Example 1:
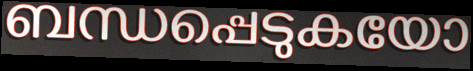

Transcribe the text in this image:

ബന്ധപ്പെടുകയോ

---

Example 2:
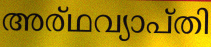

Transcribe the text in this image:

അര്ഥവ്യാപ്തി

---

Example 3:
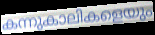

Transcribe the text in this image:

കന്നുകാലികളെയും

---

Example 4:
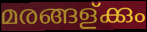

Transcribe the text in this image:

മരങ്ങള്ക്കും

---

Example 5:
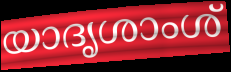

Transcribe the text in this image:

യാദൃശാംശ്